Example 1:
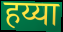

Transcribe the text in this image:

हय्या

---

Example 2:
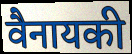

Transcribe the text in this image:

वैनायकी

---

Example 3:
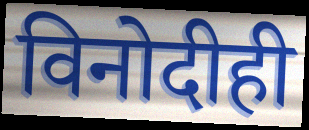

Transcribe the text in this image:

विनोदीही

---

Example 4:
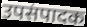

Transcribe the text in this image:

उपसंपादक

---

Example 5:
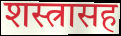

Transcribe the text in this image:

शस्त्रासह